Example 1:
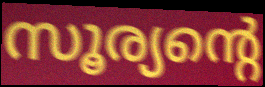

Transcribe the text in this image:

സൂര്യന്റെ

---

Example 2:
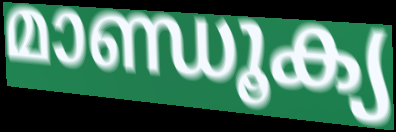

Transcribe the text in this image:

മാണ്ഡൂക്യ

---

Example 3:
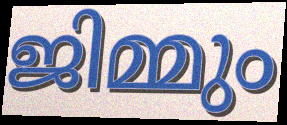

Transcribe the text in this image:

ജിമ്മും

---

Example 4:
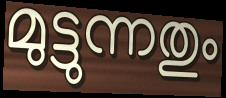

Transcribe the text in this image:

മുട്ടുന്നതും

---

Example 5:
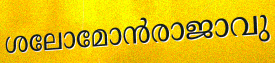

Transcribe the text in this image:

ശലോമോൻരാജാവു